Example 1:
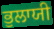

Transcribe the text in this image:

ਭੁਲਾਯੀ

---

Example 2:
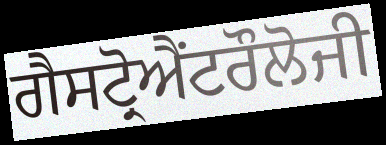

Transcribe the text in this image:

ਗੈਸਟ੍ਰੋਐਂਟਰੌਲੋਜੀ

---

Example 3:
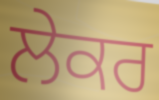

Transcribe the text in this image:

ਲੇਕਰ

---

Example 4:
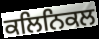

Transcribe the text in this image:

ਕਲਿਨਿਕਲ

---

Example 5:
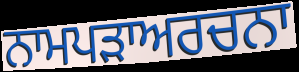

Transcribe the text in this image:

ਨਾਮਪੜਾਅਰਚਨਾ